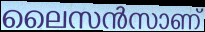
ലൈസൻസാണ്